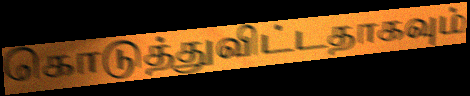
கொடுத்துவிட்டதாகவும்